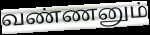
வண்ணனும்